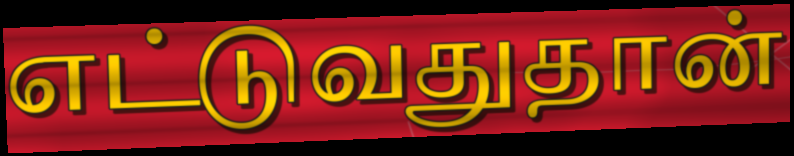
எட்டுவதுதான்